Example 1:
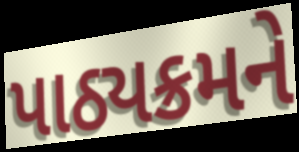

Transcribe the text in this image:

પાઠ્યક્રમને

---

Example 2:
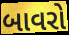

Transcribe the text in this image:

બાવરો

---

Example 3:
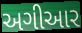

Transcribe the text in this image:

અગીઆર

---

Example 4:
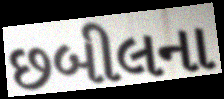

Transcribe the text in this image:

છબીલના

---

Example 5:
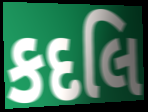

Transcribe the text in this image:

કદલિ